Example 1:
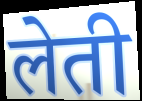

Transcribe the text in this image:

लेती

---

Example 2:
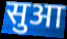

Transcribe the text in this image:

सुआ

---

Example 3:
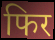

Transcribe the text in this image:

फिर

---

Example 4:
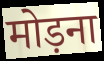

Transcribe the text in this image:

मोड़ना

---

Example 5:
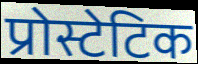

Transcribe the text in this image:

प्रोस्टेटिक